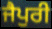
ਜੈਪੁਰੀ